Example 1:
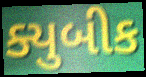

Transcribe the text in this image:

ક્યુબીક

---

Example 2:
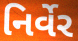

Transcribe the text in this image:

નિર્વેર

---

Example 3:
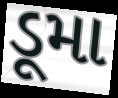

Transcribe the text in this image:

ડૂમા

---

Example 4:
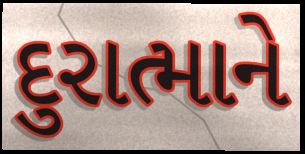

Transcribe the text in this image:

દુરાત્માને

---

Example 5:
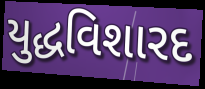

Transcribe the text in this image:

યુદ્ધવિશારદ